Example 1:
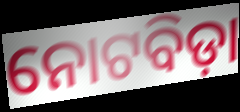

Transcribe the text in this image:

ନୋଟବିଡ଼ା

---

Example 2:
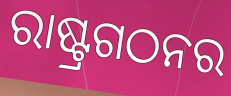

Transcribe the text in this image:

ରାଷ୍ଟ୍ରଗଠନର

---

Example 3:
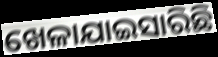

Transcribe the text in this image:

ଖେଳାଯାଇସାରିଛି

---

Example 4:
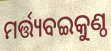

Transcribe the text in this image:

ମର୍ତ୍ତ୍ୟବଇକୁଣ୍ଠ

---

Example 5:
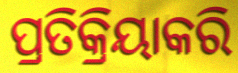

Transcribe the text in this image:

ପ୍ରତିକ୍ରିୟାକରି